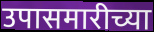
उपासमारीच्या